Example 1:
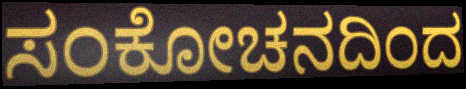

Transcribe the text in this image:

ಸಂಕೋಚನದಿಂದ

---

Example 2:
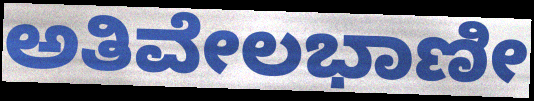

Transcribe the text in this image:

ಅತಿವೇಲಭಾಣೀ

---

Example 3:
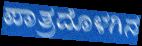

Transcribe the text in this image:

ಪಾತ್ರದೊಳಗಿನ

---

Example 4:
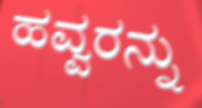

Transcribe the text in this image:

ಹವ್ವರನ್ನು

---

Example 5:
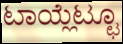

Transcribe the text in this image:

ಟಾಯ್ಲೆಟ್ಟೂ